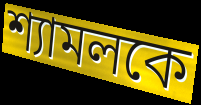
শ্যামলকে